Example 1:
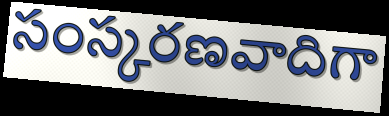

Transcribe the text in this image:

సంస్కరణవాదిగా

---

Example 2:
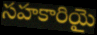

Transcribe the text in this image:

సహకారియై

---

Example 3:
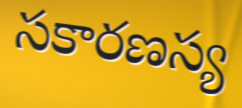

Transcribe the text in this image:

సకారణస్య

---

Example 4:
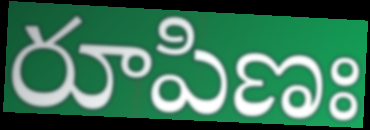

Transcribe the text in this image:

రూపిణః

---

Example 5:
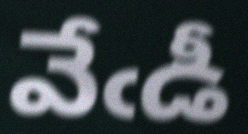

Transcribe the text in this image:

వేఁడీ